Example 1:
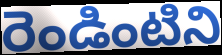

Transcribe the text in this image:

రెండింటిని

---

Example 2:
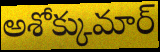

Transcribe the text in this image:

అశోక్కుమార్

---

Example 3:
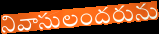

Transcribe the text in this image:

నివాసులందరును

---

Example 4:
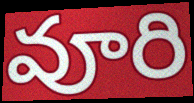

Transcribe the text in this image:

వూరి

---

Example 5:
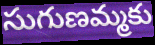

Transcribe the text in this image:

సుగుణమ్మకు